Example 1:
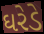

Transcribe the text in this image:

ઘરેડે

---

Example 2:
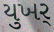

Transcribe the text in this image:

યુખર્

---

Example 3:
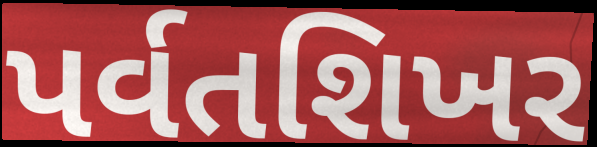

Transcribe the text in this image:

પર્વતશિખર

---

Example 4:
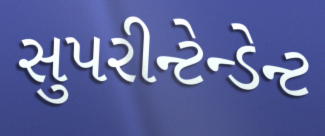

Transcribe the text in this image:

સુપરીન્ટેન્ડેન્ટ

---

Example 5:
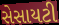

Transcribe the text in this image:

સેસાયટી